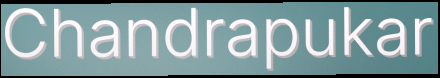
Chandrapukar